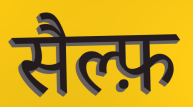
सैल्फ़